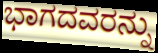
ಭಾಗದವರನ್ನು